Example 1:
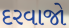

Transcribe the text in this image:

દરવાજો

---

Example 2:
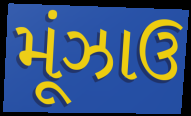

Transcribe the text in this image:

મૂંઝાઉ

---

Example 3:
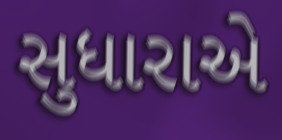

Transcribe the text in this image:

સુધારાએ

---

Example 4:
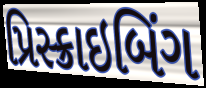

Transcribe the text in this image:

પ્રિસ્ક્રાઇબિંગ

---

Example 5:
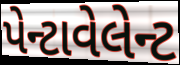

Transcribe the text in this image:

પેન્ટાવેલેન્ટ